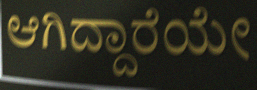
ಆಗಿದ್ದಾರೆಯೇ